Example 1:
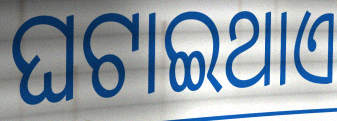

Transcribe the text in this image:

ଘଟାଇଥାଏ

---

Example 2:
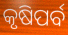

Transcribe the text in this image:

କୃଷିପର୍ବ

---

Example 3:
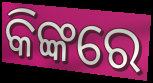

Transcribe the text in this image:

କିଙ୍କରେ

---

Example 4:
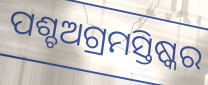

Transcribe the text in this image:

ପଶ୍ଚଅଗ୍ରମସ୍ତିଷ୍କର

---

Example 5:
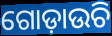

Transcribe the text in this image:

ଗୋଡ଼ାଉଚି